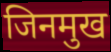
जिनमुख